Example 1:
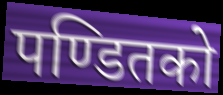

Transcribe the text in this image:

पण्डितको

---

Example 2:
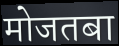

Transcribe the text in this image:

मोजतबा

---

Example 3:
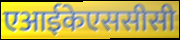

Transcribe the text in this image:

एआईकेएससीसी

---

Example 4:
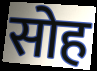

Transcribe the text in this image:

सोह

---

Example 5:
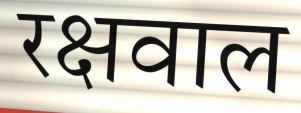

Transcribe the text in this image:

रक्षवाल